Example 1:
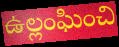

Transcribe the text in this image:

ఉల్లంఘించి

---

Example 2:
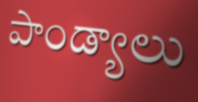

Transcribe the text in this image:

పాండ్యాలు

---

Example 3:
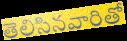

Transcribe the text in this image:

తెలిసినవారితో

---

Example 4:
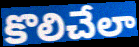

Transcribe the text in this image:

కొలిచేలా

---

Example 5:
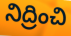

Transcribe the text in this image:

నిద్రించి